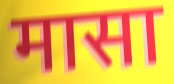
मासा